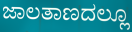
ಜಾಲತಾಣದಲ್ಲೂ